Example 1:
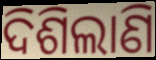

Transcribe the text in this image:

ଦିଶିଲାଣି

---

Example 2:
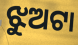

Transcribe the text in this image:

ଝୁଅଟା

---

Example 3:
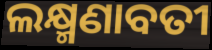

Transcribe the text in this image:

ଲକ୍ଷ୍ମଣାବତୀ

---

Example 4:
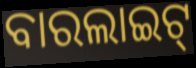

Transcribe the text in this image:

ବାରଲାଇଟ୍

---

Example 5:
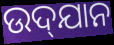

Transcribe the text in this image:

ଉଦ୍‌ଯାନ